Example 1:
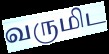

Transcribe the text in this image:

வருமிட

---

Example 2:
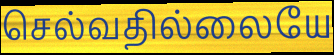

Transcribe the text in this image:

செல்வதில்லையே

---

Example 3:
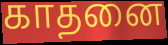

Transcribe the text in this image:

காதனை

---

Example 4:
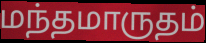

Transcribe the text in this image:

மந்தமாருதம்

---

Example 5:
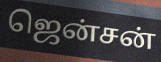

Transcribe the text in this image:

ஜென்சன்